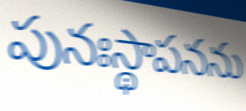
పునఃస్థాపనను